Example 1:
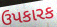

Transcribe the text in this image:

ઉપકારક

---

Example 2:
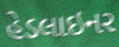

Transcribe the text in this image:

હેડલાઇનર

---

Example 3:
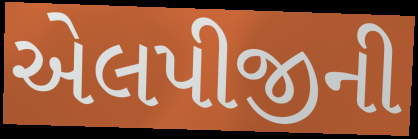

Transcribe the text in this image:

એલપીજીની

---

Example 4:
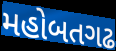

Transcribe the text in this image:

મહોબતગઢ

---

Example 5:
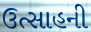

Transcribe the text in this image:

ઉત્સાહની